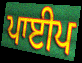
ਪਾਈਪ